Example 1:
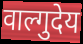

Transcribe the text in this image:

वाल्गुदेय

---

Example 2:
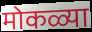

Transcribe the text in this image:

मोकळ्या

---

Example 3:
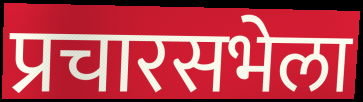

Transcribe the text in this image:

प्रचारसभेला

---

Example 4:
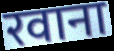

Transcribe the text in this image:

रवाना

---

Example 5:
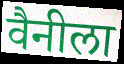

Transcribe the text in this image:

वैनीला